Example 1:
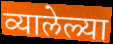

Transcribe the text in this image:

व्यालेल्या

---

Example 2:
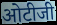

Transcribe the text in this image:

ओटीजी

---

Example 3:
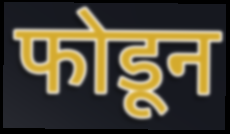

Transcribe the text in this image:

फोडून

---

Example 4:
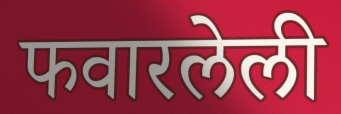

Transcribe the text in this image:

फवारलेली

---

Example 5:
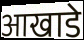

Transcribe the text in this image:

आखाडे